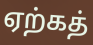
ஏற்கத்